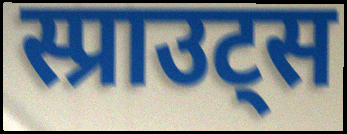
स्प्राउट्स